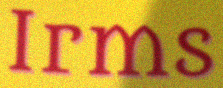
Irms